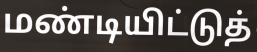
மண்டியிட்டுத்